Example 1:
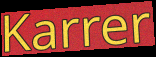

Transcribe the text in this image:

Karrer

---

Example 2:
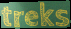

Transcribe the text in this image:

treks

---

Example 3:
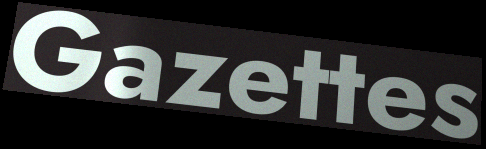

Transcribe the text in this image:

Gazettes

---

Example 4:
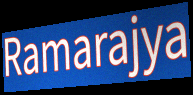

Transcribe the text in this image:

Ramarajya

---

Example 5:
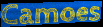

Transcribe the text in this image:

Camoes